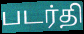
படர்தி